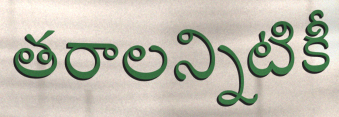
తరాలన్నిటికీ